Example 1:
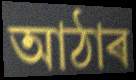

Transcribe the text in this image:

আঠাৰ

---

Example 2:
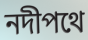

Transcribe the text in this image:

নদীপথে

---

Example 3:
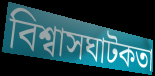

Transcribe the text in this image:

বিশ্বাসঘাটকতা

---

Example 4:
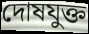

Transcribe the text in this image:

দোষযুক্ত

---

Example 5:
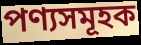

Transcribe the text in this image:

পণ্যসমূহক